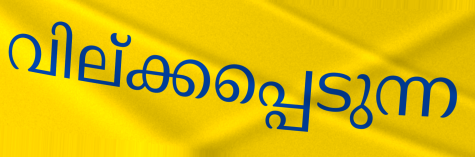
വില്ക്കപ്പെടുന്ന